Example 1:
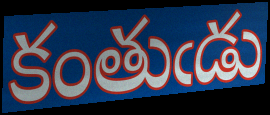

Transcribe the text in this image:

కంతుఁడు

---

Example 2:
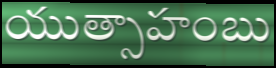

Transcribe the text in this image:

యుత్సాహంబు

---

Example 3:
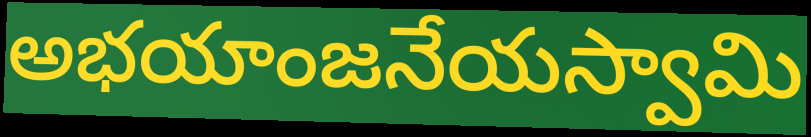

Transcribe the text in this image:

అభయాంజనేయస్వామి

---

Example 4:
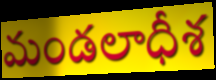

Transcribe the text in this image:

మండలాధీశ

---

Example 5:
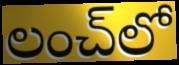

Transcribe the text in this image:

లంచ్‌లో